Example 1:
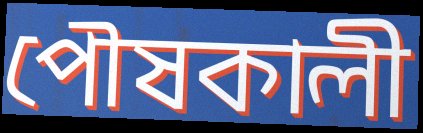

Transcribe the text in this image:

পৌষকালী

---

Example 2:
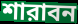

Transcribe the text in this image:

শারাবন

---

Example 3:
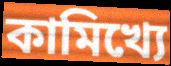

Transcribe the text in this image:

কামিখ্যে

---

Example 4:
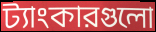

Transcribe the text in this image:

ট্যাংকারগুলো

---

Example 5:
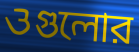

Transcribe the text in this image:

ওগুলোর